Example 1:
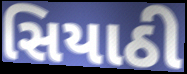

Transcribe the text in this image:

સિયાઠી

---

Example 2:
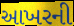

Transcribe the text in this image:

આખરની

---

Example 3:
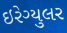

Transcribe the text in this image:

ઇરેગ્યુલર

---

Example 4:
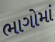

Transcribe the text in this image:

ભાગોમાં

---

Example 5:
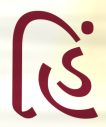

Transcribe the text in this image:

હિં